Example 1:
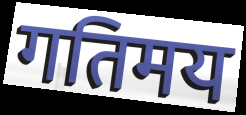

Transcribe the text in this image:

गतिमय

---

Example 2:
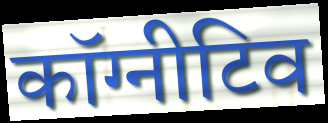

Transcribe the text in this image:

कॉग्‍नीटिव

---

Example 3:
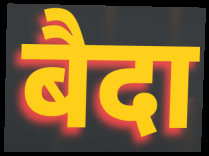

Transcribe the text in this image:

बैदा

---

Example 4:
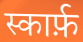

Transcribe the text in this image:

स्कार्फ़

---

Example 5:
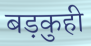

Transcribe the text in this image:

बड़कुही